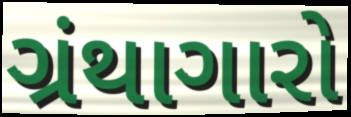
ગ્રંથાગારો